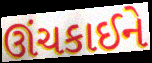
ઊંચકાઈને